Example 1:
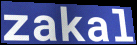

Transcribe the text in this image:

zakal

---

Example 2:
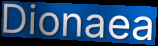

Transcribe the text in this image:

Dionaea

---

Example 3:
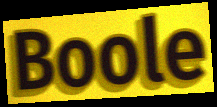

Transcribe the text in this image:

Boole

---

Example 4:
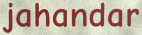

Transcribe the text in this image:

jahandar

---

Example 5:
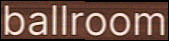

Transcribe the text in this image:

ballroom